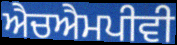
ਐਚਐਮਪੀਵੀ